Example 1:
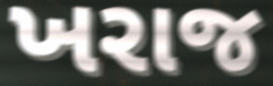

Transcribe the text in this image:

ખરાજ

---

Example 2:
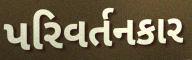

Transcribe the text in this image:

પરિવર્તનકાર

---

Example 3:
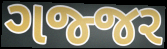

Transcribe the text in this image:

ગજ્જર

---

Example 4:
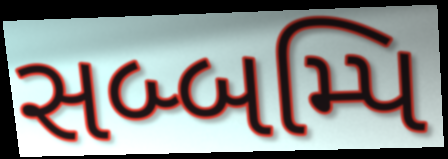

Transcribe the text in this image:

સબ્બમ્પિ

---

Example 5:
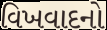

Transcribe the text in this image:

વિખવાદનો